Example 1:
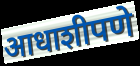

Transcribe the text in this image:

आधाशीपणे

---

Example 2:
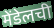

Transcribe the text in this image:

मेंडेलची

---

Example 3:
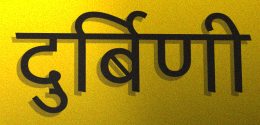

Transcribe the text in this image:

दुर्बिणी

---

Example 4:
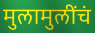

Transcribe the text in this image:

मुलामुलींचं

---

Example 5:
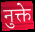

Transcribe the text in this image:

नुक्ते